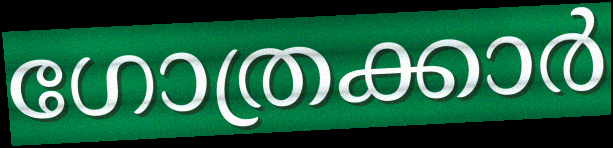
ഗോത്രക്കാർ